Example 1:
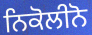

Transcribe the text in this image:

ਨਿਕੋਲੀਨੋ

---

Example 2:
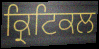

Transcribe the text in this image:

ਕ੍ਰਿਟਿਕਲ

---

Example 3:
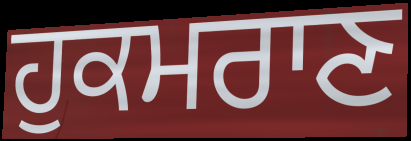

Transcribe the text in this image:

ਹੁਕਮਰਾਣ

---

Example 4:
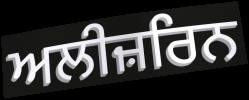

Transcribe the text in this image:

ਅਲੀਜ਼ਰਿਨ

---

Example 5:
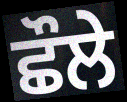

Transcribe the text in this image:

ਛੌਲੇ